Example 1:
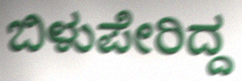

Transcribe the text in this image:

ಬಿಳುಪೇರಿದ್ದ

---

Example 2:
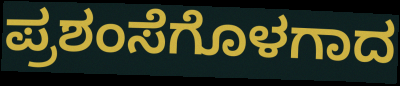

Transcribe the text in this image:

ಪ್ರಶಂಸೆಗೊಳಗಾದ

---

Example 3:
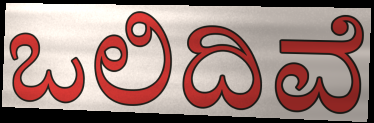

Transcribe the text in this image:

ಒಲಿದಿವೆ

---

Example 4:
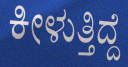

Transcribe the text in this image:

ಕೀಳುತ್ತಿದ್ದೆ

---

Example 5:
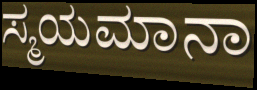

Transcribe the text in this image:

ಸ್ಮಯಮಾನಾ